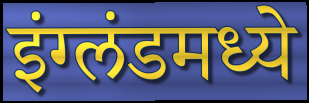
इंग्लंडमध्ये